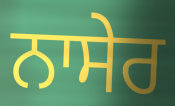
ਨਾਸੇਰ